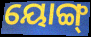
ୟୋଙ୍ଗ୍